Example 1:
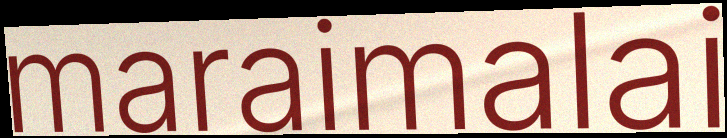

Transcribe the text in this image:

maraimalai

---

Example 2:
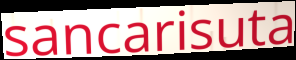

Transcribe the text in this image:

sancarisuta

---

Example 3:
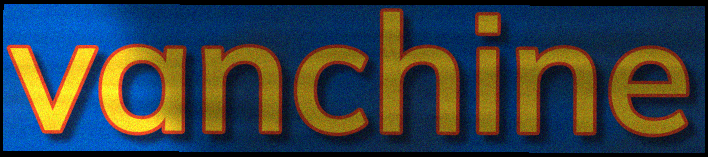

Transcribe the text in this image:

vanchine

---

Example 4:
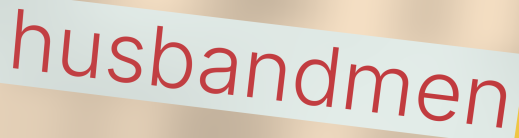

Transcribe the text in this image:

husbandmen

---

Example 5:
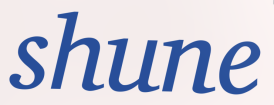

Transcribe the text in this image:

shune